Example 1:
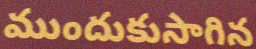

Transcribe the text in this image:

ముందుకుసాగిన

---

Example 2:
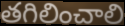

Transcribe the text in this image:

తగిలించాలి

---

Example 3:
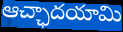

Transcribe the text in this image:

ఆచ్ఛాదయామి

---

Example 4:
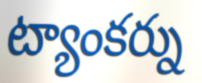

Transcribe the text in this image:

ట్యాంకర్ను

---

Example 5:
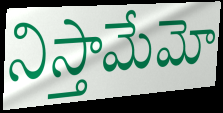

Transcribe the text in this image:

నిస్తామేమో